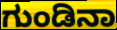
ಗುಂಡಿನಾ